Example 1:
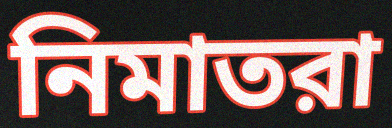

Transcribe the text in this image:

নিমাতরা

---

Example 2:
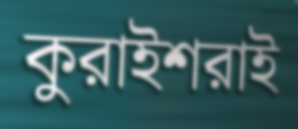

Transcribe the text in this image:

কুরাইশরাই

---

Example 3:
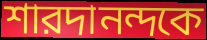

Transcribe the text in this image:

শারদানন্দকে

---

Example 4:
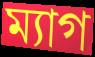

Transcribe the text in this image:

ম্যাগ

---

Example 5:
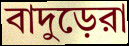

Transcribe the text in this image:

বাদুড়েরা